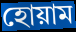
হোয়াম